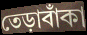
তেড়াবাঁকা